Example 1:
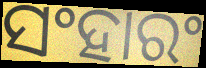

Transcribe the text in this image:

ସଂହାରଂ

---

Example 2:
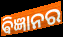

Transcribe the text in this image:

ଵିଜ୍ଞାନର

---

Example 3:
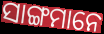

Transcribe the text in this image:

ସାଙ୍ଗମାନେ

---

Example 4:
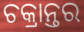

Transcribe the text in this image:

ଚକ୍ରାନ୍ତର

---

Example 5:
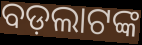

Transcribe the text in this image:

ବଡ଼ଲାଟଙ୍କ